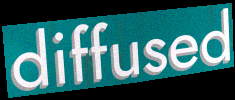
diffused